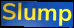
Slump